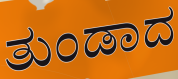
ತುಂಡಾದ